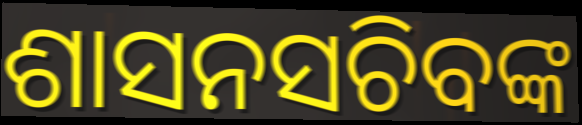
ଶାସନସଚିବଙ୍କ